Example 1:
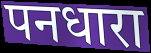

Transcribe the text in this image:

पनधारा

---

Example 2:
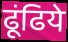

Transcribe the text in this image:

ढूंढिये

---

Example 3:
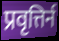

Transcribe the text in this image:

प्रवृत्तिर्न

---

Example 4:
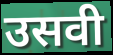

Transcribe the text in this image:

उसवी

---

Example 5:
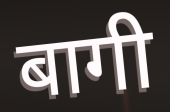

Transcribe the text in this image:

बागी